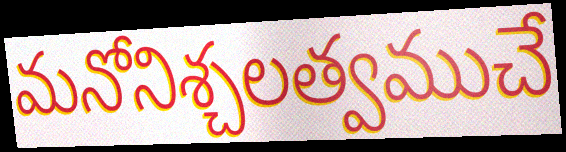
మనోనిశ్చలత్వముచే